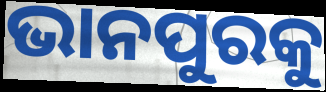
ଭାନପୁରକୁ